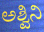
ಅಶ್ವಿನಿ